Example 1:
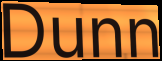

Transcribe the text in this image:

Dunn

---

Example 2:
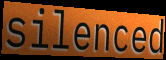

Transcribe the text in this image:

silenced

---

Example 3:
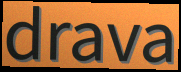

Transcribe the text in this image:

drava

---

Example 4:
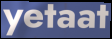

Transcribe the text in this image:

yetaat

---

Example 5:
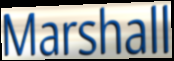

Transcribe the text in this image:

Marshall